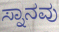
ಸ್ನಾನವು